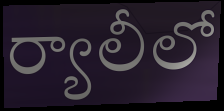
ర్యాలీలో